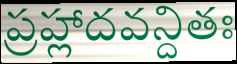
ప్రహ్లాదవన్దితః